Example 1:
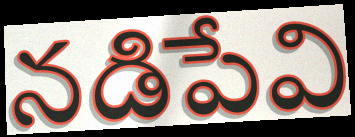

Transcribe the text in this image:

నడిపేవి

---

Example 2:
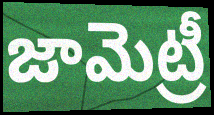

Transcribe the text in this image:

జామెట్రీ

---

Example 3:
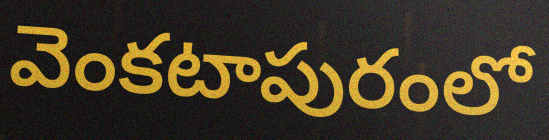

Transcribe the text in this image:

వెంకటాపురంలో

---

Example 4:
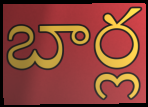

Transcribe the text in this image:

బార్ల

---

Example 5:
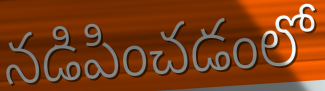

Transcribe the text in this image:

నడిపించడంలో